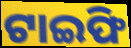
ଟାଇଫି